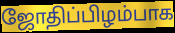
ஜோதிப்பிழம்பாக